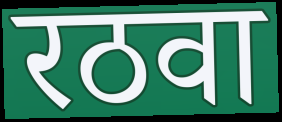
रठवा